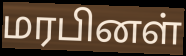
மரபினள்